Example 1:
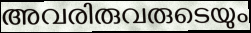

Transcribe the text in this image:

അവരിരുവരുടെയും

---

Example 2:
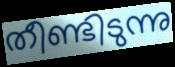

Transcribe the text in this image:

തീണ്ടിടുന്നു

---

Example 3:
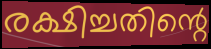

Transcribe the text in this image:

രക്ഷിച്ചതിന്റെ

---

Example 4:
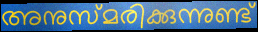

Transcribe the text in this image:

അനുസ്മരിക്കുന്നുണ്ട്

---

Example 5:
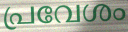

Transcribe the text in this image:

പ്രവേശം